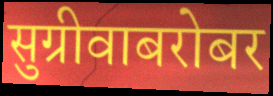
सुग्रीवाबरोबर